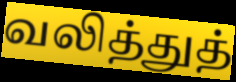
வலித்துத்